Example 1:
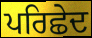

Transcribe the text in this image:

ਪਰਿਛੇਦ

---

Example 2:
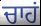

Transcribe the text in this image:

ਚਾਹਂ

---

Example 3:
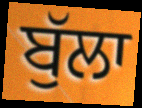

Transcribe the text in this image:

ਬੁੱਲਾ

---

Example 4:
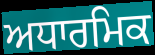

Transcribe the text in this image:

ਅਧਾਰਮਿਕ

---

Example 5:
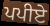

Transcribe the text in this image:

ਪਪੀਏ